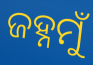
ଜହ୍ନମୁଁ